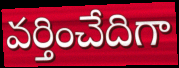
వర్తించేదిగా